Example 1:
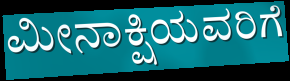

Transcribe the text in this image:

ಮೀನಾಕ್ಷಿಯವರಿಗೆ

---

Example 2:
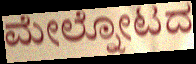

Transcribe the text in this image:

ಮೇಲ್ನೋಟದ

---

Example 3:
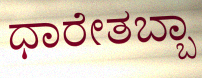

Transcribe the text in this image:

ಧಾರೇತಬ್ಬಾ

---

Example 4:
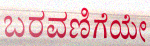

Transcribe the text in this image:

ಬರವಣಿಗೆಯೇ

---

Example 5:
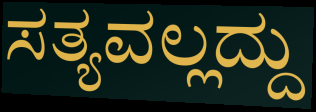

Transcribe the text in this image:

ಸತ್ಯವಲ್ಲದ್ದು